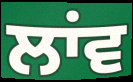
ਲਾਂਵ